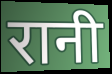
रानी